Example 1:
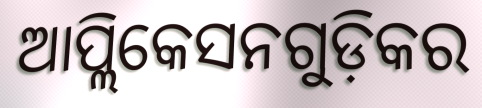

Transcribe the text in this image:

ଆପ୍ଲିକେସନଗୁଡ଼ିକର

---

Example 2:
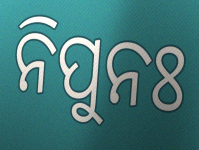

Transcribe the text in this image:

ନିପୁନଃ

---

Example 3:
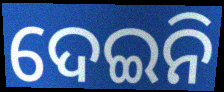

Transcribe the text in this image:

ଦେଇନି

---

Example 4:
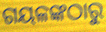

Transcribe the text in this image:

ଗୟଳଙ୍କଠାରୁ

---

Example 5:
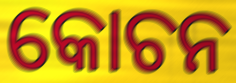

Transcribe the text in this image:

କୋଚନ